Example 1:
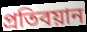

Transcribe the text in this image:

প্রতিবয়ান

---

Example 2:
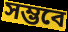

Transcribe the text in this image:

সম্ভবে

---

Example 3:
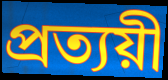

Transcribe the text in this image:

প্রত্যয়ী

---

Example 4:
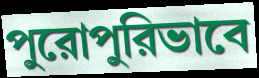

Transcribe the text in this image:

পুরোপুরিভাবে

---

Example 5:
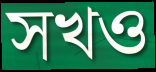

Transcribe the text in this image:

সখও